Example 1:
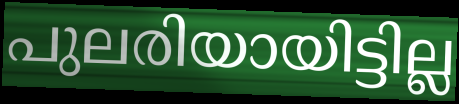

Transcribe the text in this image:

പുലരിയായിട്ടില്ല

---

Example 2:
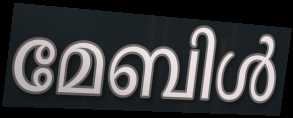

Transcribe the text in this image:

മേബിൾ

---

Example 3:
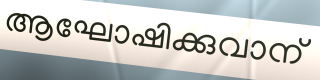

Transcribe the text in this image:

ആഘോഷിക്കുവാന്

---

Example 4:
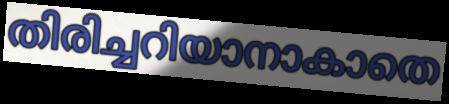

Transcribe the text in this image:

തിരിച്ചറിയാനാകാതെ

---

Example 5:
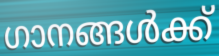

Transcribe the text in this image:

ഗാനങ്ങൾക്ക്